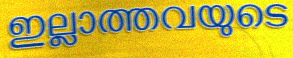
ഇല്ലാത്തവയുടെ